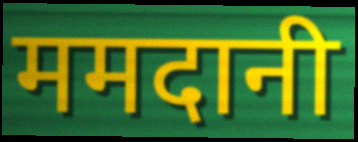
ममदानी